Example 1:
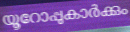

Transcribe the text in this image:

യൂറോപ്പുകാർക്കും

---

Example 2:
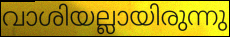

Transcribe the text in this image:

വാശിയല്ലായിരുന്നു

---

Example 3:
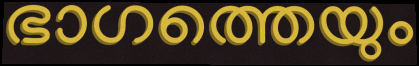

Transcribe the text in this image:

ഭാഗത്തെയും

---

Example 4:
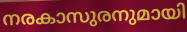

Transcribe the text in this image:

നരകാസുരനുമായി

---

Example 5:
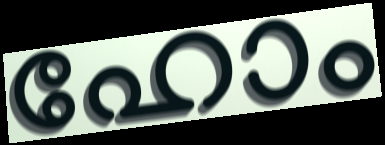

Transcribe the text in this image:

ഹോം